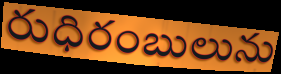
రుధిరంబులును